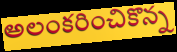
అలంకరించికొన్న